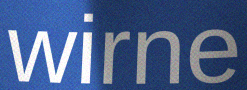
wirne